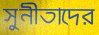
সুনীতাদের